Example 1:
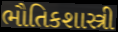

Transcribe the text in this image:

ભૌતિકશાસ્ત્રી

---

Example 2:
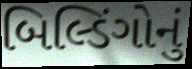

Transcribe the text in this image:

બિલ્ડિંગોનું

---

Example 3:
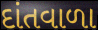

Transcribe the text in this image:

દાંતવાળા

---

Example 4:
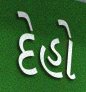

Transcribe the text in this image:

દેહો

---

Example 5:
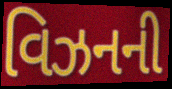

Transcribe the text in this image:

વિઝનની